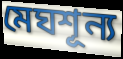
মেঘশূন্য